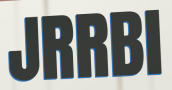
JRRBl